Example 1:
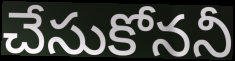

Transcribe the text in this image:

చేసుకోననీ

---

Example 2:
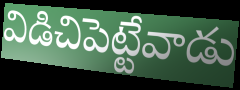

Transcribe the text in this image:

విడిచిపెట్టేవాడు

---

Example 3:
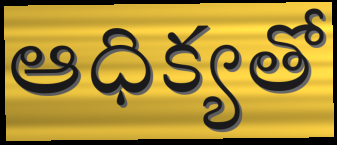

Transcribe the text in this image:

ఆధిక్యతో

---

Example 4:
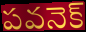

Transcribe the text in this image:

పవనెక్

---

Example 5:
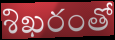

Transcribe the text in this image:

శిఖరంతో